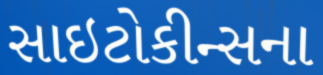
સાઇટોકીન્સના